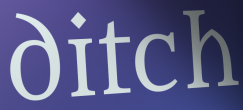
ditch